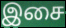
இசை